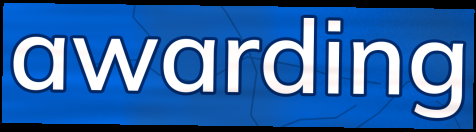
awarding